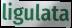
ligulata